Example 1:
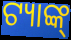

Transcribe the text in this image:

ଟ୍ୟାଙ୍କ୍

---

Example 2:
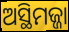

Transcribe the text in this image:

ଅସ୍ଥିମଜ୍ଜା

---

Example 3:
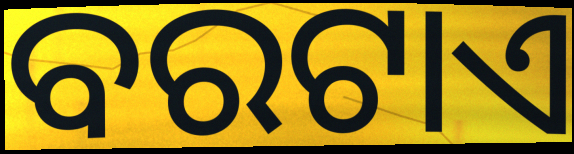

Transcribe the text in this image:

ବରଟାଏ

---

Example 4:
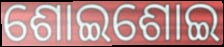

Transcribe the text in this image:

ଶୋଇଶୋଇ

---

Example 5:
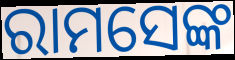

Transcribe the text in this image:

ରାମସେଙ୍କ